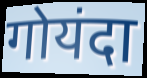
गोयंदा